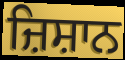
ਜ਼ਿਸ਼ਾਨ